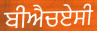
ਬੀਐਚਏਸੀ